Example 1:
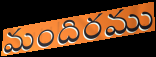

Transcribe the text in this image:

మందిరము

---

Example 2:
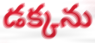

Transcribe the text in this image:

డక్కను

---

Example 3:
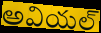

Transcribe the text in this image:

అవియల్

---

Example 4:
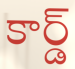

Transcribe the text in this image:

కార్డ్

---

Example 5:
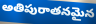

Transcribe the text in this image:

అతిపురాతనమైన